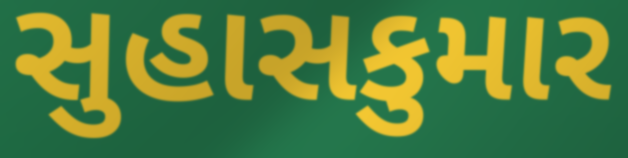
સુહાસકુમાર